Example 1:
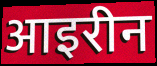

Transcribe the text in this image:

आइरीन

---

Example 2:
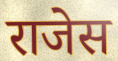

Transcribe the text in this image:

राजेस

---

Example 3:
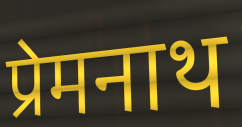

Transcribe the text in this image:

प्रेमनाथ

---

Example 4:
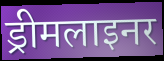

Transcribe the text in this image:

ड्रीमलाइनर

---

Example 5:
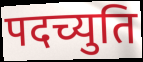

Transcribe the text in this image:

पदच्युति